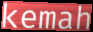
kemah